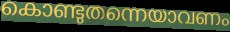
കൊണ്ടുതന്നെയാവണം